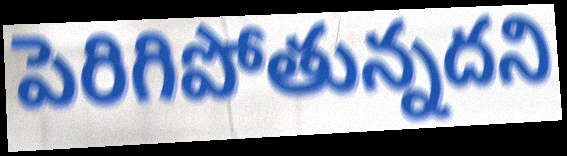
పెరిగిపోతున్నదని